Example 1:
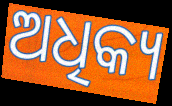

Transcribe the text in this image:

ଅଧିକ୍ୟ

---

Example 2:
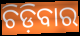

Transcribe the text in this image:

ଚିଡ଼ିବାର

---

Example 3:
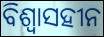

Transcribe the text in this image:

ବିଶ୍ୱାସହୀନ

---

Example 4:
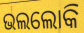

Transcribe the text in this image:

ଭଲଲୋକି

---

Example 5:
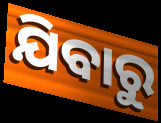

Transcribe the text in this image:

ଯିବାରୁ